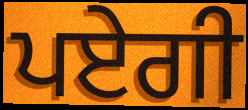
ਪਏਗੀ